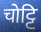
चोट्टि